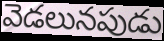
వెడలునపుడు